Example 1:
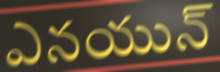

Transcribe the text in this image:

ఎనయున్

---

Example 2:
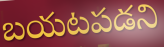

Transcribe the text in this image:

బయటపడని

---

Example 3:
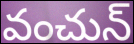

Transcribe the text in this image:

వంచున్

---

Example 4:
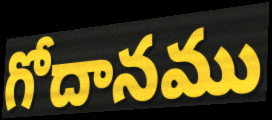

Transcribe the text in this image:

గోదానము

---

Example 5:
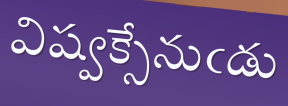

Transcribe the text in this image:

విష్వక్సేనుఁడు